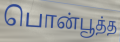
பொன்பூத்த